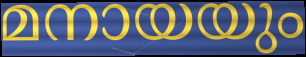
മനായയും